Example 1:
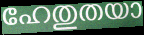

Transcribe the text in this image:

ഹേതുതയാ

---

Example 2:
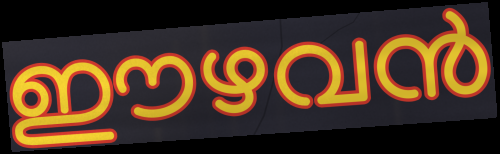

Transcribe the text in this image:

ഈഴവൻ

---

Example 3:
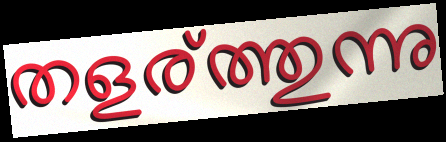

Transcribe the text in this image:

തളര്ത്തുന്നു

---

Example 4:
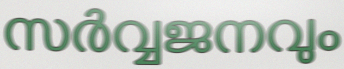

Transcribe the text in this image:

സർവ്വജനവും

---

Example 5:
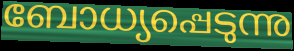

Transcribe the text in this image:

ബോധ്യപ്പെടുന്നു